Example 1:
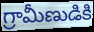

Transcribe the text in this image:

గ్రామీణుడికి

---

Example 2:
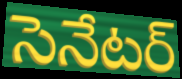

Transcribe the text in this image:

సెనేటర్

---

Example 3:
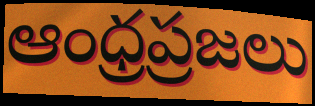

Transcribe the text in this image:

ఆంధ్రప్రజలు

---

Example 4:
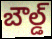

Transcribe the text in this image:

బౌల్డ్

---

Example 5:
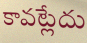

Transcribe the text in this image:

కావట్లేదు